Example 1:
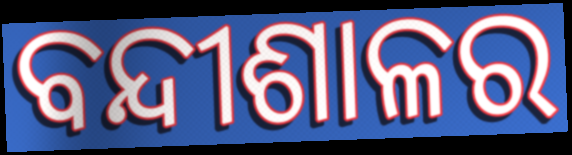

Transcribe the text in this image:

ବନ୍ଦୀଶାଳର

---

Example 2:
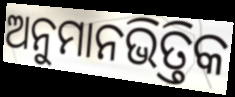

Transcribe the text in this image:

ଅନୁମାନଭିତ୍ତିକ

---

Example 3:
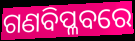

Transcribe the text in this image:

ଗଣବିପ୍ଳବରେ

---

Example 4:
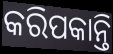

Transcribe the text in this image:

କରିପକାନ୍ତି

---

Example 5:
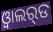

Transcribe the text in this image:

ଓ୍ବାଲର୍‌ଡ